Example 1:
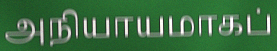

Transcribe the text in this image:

அநியாயமாகப்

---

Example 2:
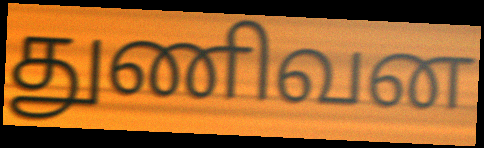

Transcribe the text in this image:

துணிவன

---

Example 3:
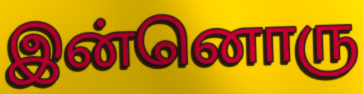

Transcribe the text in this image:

இன்னொரு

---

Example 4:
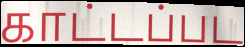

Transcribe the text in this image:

காட்டப்பட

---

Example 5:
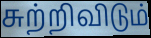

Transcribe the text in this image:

சுற்றிவிடும்